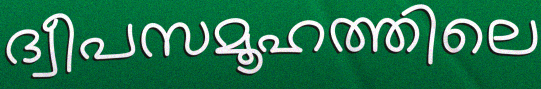
ദ്വീപസമൂഹത്തിലെ